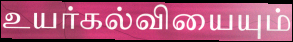
உயர்கல்வியையும்